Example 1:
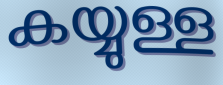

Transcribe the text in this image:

കയ്യുള്ള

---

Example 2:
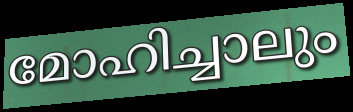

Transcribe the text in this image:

മോഹിച്ചാലും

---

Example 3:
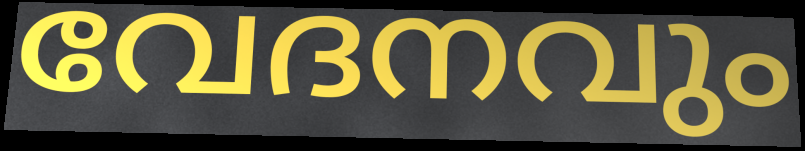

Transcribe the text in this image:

വേദനവും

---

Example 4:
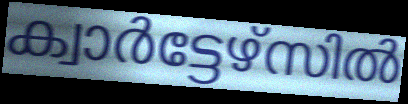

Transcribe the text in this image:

ക്വാർട്ടേഴ്സിൽ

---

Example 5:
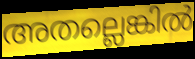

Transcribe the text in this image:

അതല്ലെങ്കിൽ